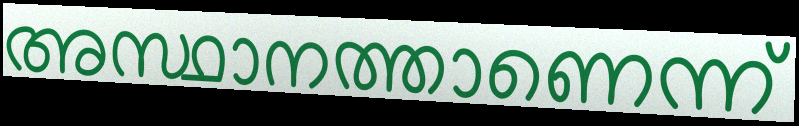
അസ്ഥാനത്താണെന്ന്